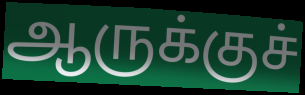
ஆருக்குச்